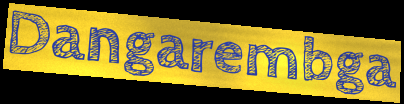
Dangarembga